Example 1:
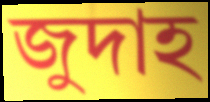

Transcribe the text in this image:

জুদাহ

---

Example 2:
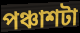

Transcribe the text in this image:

পঞ্চাশটা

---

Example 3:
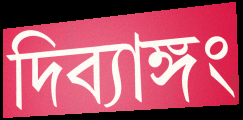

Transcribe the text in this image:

দিব্যাঙ্গং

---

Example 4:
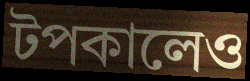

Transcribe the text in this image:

টপকালেও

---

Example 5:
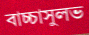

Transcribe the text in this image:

বাচ্চাসুলভ